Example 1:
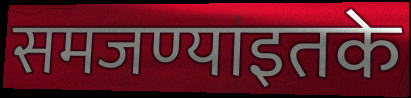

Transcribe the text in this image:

समजण्याइतके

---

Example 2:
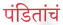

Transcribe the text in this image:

पंडितांचं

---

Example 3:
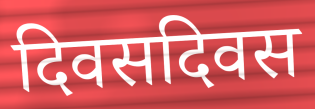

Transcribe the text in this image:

दिवसदिवस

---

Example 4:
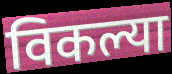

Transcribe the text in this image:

विकल्या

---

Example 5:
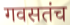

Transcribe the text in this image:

गवसतंच